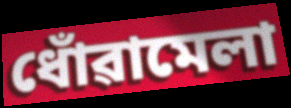
ধোঁৱামেলা